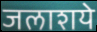
जलाशये